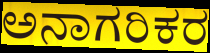
ಅನಾಗರಿಕರ